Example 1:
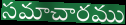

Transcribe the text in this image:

సమాచారము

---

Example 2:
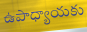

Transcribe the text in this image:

ఉపాధ్యాయకు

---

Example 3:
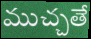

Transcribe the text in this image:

ముచ్చతే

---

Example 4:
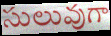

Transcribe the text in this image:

సులువుగా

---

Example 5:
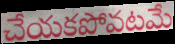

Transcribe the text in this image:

చేయకపోవటమే